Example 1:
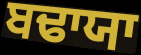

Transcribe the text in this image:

ਬਢਾਯਾ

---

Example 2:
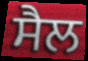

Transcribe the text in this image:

ਸੈਲ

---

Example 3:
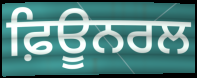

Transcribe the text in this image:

ਫ਼ਿਊਨਰਲ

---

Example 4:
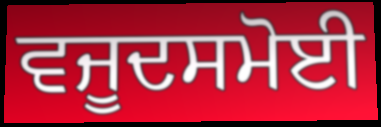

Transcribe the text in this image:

ਵਜੂਦਸਮੋਈ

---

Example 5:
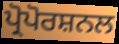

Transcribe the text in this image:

ਪ੍ਰੋਪੋਰਸ਼ਨਲ